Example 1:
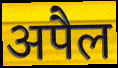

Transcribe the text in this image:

अपैल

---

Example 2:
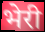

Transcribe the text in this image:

भेरी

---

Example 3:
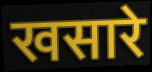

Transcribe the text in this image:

खसारे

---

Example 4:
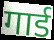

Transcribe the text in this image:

गार्ड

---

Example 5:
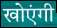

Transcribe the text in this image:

खोएंगी